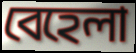
বেহেলা